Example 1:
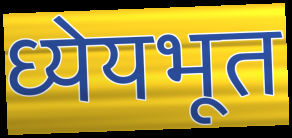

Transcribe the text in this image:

ध्येयभूत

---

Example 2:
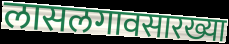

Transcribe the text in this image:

लासलगावसारख्या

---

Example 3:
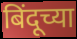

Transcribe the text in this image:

बिंदूच्या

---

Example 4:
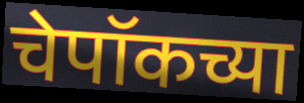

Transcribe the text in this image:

चेपॉकच्या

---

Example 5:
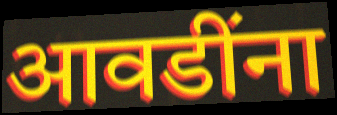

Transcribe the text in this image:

आवडींना